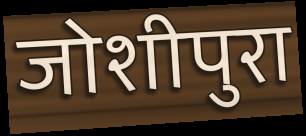
जोशीपुरा